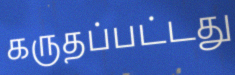
கருதப்பட்டது